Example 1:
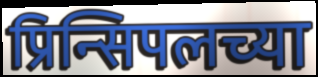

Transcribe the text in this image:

प्रिन्सिपलच्या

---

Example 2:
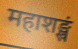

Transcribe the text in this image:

महाशङ्खं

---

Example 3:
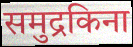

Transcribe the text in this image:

समुद्रकिना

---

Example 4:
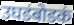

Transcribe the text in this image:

उघडंबोडकं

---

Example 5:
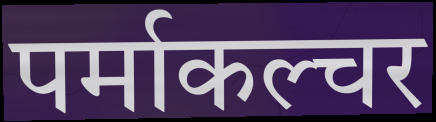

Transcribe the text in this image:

पर्माकल्चर